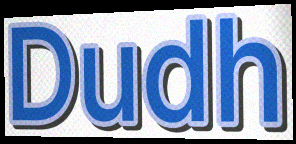
Dudh